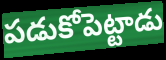
పడుకోపెట్టాడు